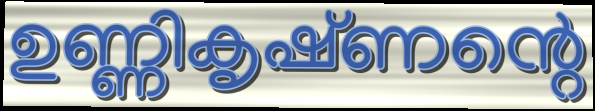
ഉണ്ണികൃഷ്‌ണന്റെ